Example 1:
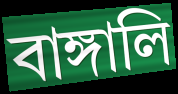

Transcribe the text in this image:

বাঙ্গালি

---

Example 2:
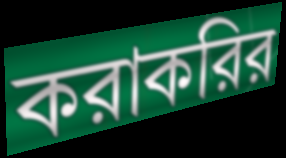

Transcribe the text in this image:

করাকরির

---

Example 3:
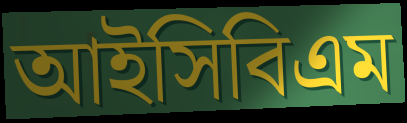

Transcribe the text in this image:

আইসিবিএম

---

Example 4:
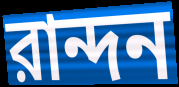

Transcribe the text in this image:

রান্দন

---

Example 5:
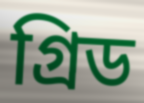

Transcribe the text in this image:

গ্রিড